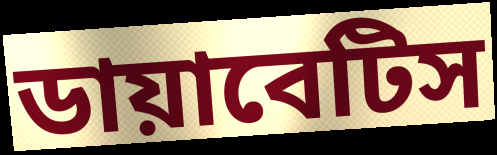
ডায়াবেটিস